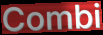
Combi